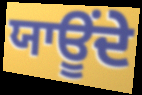
ਯਾਊਂਦੇ